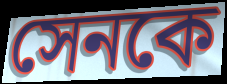
সেনকে